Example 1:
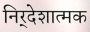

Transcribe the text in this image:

निर्देशात्मक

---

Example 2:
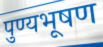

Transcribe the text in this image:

पुण्यभूषण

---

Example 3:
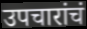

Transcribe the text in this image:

उपचारांचं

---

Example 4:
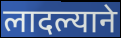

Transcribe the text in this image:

लादल्याने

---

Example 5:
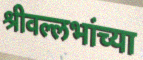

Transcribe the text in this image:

श्रीवल्लभांच्या